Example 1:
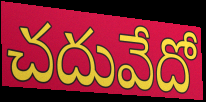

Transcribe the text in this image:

చదువేదో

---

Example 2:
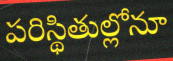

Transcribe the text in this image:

పరిస్థితుల్లోనూ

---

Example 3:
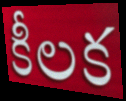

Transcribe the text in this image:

కీలక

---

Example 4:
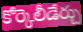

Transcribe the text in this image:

కోర్కెలీడేర్చు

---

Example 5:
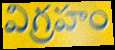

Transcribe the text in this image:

విగ్రహం